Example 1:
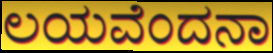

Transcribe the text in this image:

ಲಯವೆಂದನಾ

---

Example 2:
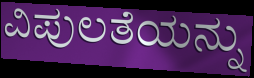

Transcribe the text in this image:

ವಿಪುಲತೆಯನ್ನು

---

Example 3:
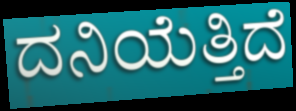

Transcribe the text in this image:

ದನಿಯೆತ್ತಿದೆ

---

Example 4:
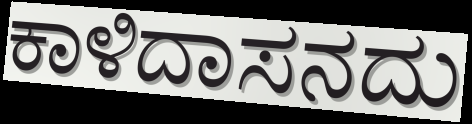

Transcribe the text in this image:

ಕಾಳಿದಾಸನದು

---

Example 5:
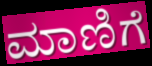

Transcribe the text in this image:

ಮಾಣಿಗೆ